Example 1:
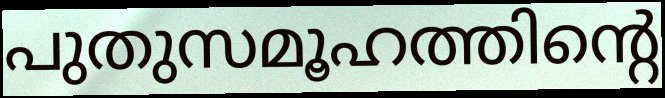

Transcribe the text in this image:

പുതുസമൂഹത്തിന്റെ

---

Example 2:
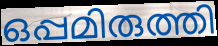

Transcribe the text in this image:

ഒപ്പമിരുത്തി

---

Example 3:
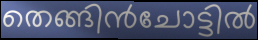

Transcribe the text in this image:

തെങ്ങിൻചോട്ടിൽ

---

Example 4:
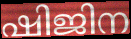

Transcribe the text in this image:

ഷിജിന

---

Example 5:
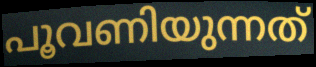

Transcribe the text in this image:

പൂവണിയുന്നത്